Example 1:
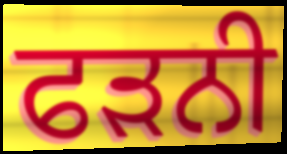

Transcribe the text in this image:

ਫੜਨੀ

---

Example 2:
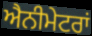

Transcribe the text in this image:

ਐਨੀਮੇਟਰਾਂ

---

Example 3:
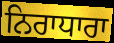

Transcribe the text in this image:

ਨਿਰਾਧਾਰਾ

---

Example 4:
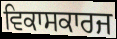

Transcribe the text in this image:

ਵਿਕਾਸਕਾਰਜ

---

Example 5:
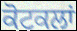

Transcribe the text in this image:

ਕੋਟਕਲਾਂ